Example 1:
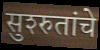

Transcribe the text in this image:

सुश्रुतांचे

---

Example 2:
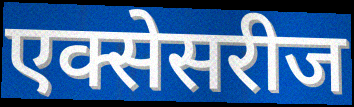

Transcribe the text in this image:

एक्सेसरीज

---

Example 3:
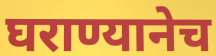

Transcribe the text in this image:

घराण्यानेच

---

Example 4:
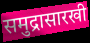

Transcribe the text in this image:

समुद्रासारखी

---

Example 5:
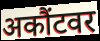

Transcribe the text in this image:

अकौंटवर